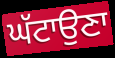
ਘੱਟਾਉਣਾ